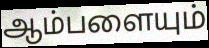
ஆம்பளையும்